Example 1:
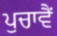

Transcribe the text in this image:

ਪੁਚਾਵੈਂ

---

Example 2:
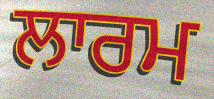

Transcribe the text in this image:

ਲਾਰਮ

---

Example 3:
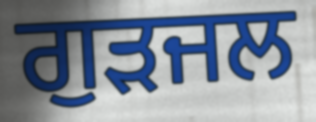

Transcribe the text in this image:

ਗੁੜਜਲ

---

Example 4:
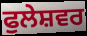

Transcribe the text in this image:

ਫੁਲੇਸ਼ਵਰ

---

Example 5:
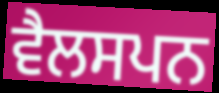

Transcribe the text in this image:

ਵੈਲਸਪਨ